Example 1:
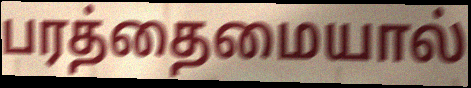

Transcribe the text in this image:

பரத்தைமையால்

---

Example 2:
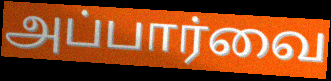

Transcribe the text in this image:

அப்பார்வை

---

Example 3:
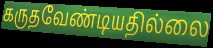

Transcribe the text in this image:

கருதவேண்டியதில்லை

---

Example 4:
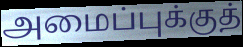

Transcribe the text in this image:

அமைப்புக்குத்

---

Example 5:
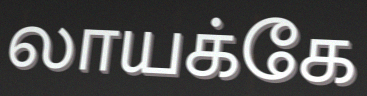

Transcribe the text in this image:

லாயக்கே